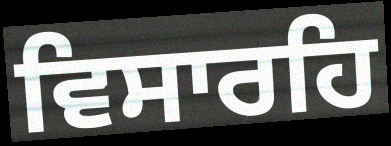
ਵਿਸਾਰਹਿ